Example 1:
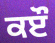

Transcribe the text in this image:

ਕੲੌ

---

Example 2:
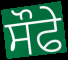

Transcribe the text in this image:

ਸੌਫੇ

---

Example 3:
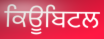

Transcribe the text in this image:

ਕਿਊਬਿਟਲ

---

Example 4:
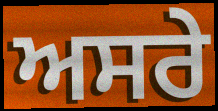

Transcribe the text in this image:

ਅਸਰੇ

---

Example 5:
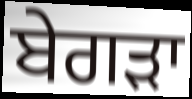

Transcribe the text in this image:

ਬੇਗੜਾ